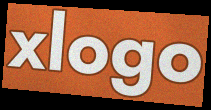
xlogo